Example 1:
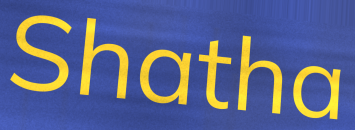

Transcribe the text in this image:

Shatha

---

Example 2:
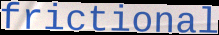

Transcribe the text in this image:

frictional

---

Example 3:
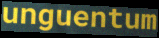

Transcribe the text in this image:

unguentum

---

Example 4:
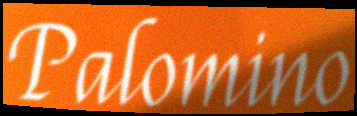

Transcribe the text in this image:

Palomino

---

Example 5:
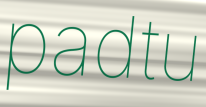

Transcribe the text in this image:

padtu